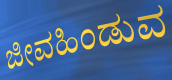
ಜೀವಹಿಂಡುವ